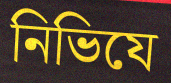
নিভিযে